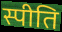
स्पीति